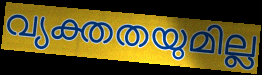
വ്യക്തതയുമില്ല